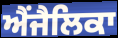
ਐਂਜੈਲਿਕਾ